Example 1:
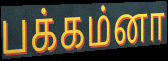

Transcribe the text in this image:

பக்கம்னா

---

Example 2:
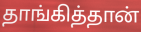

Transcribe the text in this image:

தாங்கித்தான்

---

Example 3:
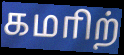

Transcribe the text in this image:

கமரிற்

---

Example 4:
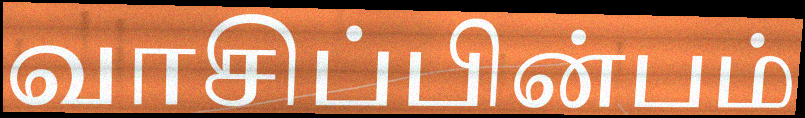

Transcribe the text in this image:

வாசிப்பின்பம்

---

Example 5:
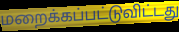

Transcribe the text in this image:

மறைக்கப்பட்டுவிட்டது